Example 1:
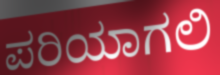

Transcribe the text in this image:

ಪರಿಯಾಗಲಿ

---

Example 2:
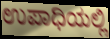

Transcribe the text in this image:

ಉಪಾಧಿಯಲ್ಲಿ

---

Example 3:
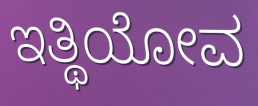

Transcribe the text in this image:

ಇತ್ಥಿಯೋವ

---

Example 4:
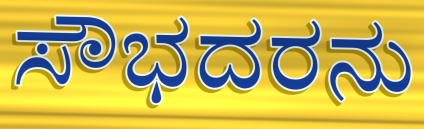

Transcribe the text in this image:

ಸೌಭದರನು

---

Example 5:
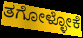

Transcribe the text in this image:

ತಗೋಳ್ಳೋಕೆ